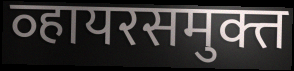
व्हायरसमुक्त